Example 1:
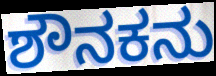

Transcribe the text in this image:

ಶೌನಕನು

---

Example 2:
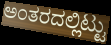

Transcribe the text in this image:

ಅಂತರದಲ್ಲಿಟ್ಟು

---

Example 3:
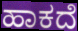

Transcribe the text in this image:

ಹಾಕದೆ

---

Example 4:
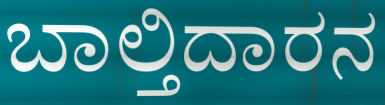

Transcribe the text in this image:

ಬಾಲ್ತಿದಾರನ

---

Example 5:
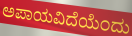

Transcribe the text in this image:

ಅಪಾಯವಿದೆಯೆಂದು